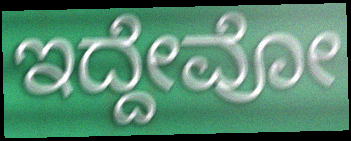
ಇದ್ದೇವೋ